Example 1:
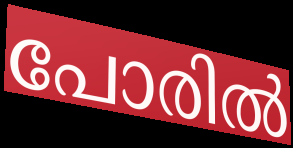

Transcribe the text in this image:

പോരിൽ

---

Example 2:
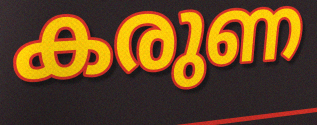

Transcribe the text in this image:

കരുണ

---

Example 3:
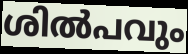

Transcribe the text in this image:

ശിൽപവും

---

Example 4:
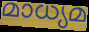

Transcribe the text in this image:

മാധ്യമ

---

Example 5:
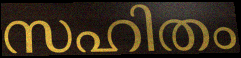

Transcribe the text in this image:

സഹിതം